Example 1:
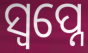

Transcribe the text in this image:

ସ୍ବପ୍ନେ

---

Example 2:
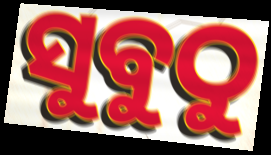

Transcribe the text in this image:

ସୁବୁଠୁ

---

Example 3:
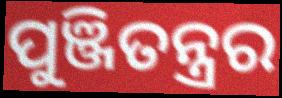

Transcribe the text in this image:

ପୁଞ୍ଜିତନ୍ତ୍ରର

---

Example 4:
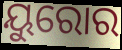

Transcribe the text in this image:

ୟୁରୋର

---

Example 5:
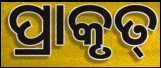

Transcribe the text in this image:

ପ୍ରାକୃତ୍